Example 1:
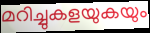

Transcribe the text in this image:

മറിച്ചുകളയുകയും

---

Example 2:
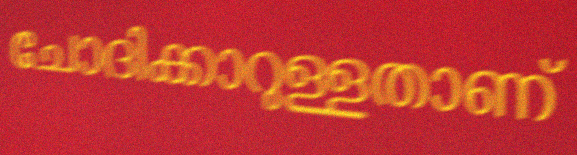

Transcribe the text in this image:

ചോദിക്കാറുള്ളതാണ്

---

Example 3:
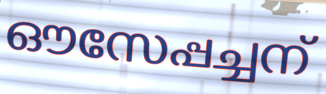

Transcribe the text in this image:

ഔസേപ്പച്ചന്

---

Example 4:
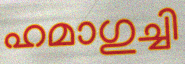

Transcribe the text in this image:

ഹമാഗുച്ചി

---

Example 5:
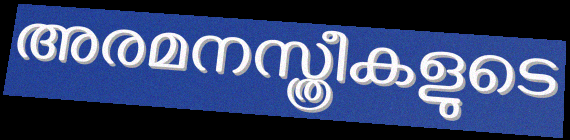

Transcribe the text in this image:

അരമനസ്ത്രീകളുടെ